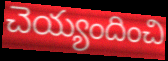
చెయ్యందించి